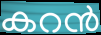
കറൻ